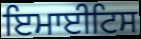
ਇਮਾਈਟਿਸ